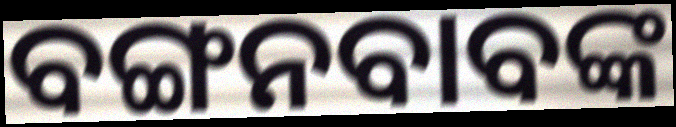
ବଙ୍ଗନବାବଙ୍କ